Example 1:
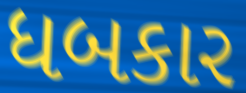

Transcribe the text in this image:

ધબકાર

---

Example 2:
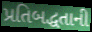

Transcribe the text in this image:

પ્રતિબદ્ધતાની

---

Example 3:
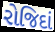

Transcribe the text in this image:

રોજિદાં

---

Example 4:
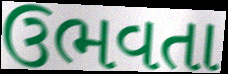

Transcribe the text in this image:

ઉભવતા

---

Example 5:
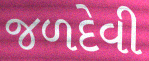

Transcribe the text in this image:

જળદેવી